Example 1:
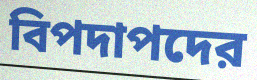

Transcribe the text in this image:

বিপদাপদের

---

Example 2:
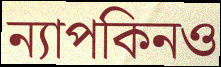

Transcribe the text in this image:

ন্যাপকিনও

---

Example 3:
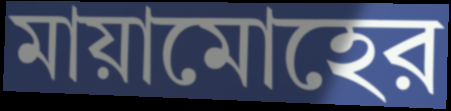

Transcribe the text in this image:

মায়ামোহের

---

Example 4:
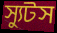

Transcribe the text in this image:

স্যুটস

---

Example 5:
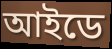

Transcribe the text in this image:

আইডে